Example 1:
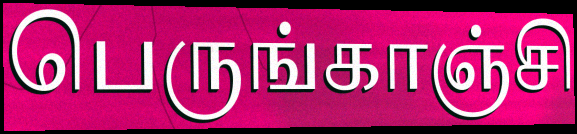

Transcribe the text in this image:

பெருங்காஞ்சி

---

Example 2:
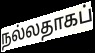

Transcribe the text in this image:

நல்லதாகப்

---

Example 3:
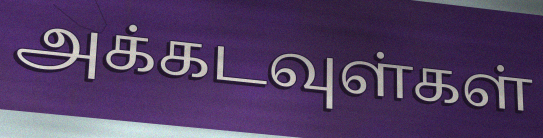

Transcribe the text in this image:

அக்கடவுள்கள்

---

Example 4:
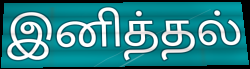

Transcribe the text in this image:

இனித்தல்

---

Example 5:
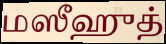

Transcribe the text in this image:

மஸீஹுத்